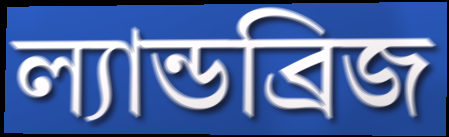
ল্যান্ডব্রিজ